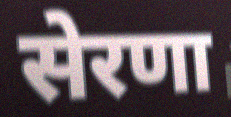
सेरणा